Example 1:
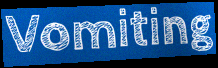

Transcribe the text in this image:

Vomiting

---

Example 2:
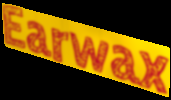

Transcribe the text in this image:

Earwax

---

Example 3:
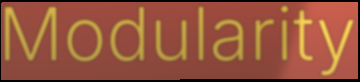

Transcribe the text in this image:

Modularity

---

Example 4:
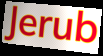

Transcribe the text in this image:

Jerub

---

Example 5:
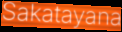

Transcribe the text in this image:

Sakatayana